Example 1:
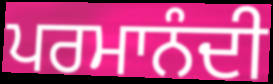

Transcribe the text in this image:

ਪਰਮਾਨੰਦੀ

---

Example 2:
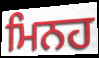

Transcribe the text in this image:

ਮਿਨਹ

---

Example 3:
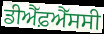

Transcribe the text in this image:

ਡੀਐੱਫ਼ਐੱਸਸੀ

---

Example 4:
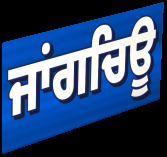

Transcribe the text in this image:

ਜਾਂਗਚਿਊ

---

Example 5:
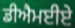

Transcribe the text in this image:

ਡੀਐਮਈਏ